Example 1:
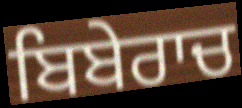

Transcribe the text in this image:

ਬਿਬੇਰਾਚ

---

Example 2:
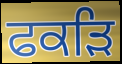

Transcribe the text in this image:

ਫਕੜਿ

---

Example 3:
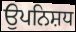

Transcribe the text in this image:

ਉਪਨਿਸ਼ਧ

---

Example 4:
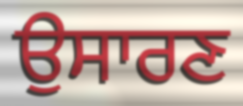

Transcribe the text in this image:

ਉਸਾਰਣ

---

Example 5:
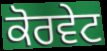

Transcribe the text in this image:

ਕੋਰਵੇਟ